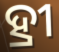
ହ୍ରୀ